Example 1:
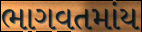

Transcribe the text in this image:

ભાગવતમાંય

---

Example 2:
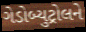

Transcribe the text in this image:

ગેડોબ્યુટ્રોલને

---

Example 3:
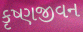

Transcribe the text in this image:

કૃષ્ણજીવન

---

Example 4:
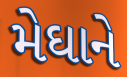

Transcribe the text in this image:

મેઘાને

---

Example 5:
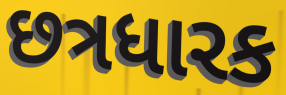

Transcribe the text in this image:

છત્રધારક